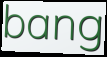
bang